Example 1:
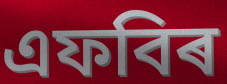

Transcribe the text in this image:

এফবিৰ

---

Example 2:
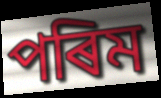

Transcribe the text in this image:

পৰিম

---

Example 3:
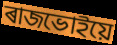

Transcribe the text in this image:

ৰাজভোইয়ে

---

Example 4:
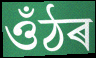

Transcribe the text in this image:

ওঁঠৰ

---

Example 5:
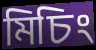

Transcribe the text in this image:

মিচিং